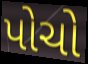
પોચો